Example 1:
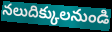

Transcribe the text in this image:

నలుదిక్కులనుండి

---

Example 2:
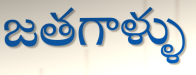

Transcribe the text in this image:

జతగాళ్ళు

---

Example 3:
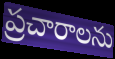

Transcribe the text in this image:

ప్రచారాలను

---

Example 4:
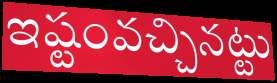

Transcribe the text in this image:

ఇష్టంవచ్చినట్టు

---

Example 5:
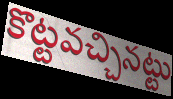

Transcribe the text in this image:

కొట్టవచ్చినట్టు